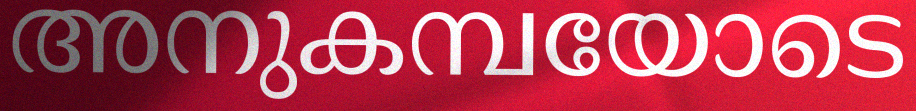
അനുകമ്പയോടെ